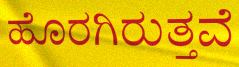
ಹೊರಗಿರುತ್ತವೆ